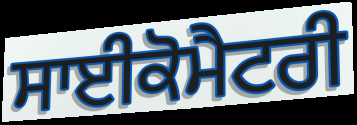
ਸਾਈਕੋਮੈਟਰੀ